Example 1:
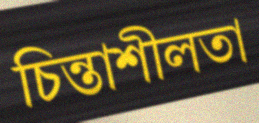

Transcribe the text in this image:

চিন্তাশীলতা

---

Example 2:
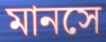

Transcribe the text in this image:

মানসে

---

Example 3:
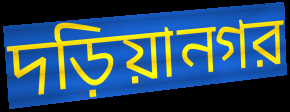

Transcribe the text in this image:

দড়িয়ানগর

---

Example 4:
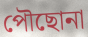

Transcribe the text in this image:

পৌছোনা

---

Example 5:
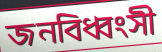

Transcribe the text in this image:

জনবিধ্বংসী